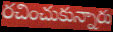
రచించుకున్నారు